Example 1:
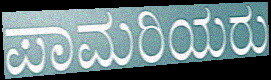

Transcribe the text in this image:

ಪಾಮರಿಯರು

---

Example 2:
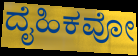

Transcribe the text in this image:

ದೈಹಿಕವೋ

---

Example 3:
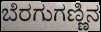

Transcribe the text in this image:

ಬೆರಗುಗಣ್ಣಿನ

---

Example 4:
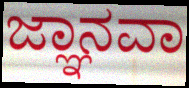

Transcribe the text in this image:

ಜ್ಞಾನವಾ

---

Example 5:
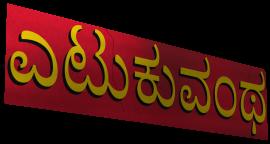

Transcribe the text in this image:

ಎಟುಕುವಂಥ